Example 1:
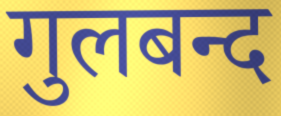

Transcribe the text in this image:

गुलबन्द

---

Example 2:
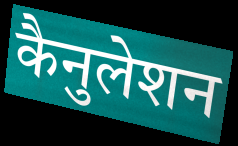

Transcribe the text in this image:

कैनुलेशन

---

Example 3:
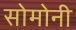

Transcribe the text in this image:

सोमोनी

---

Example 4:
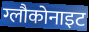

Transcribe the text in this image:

ग्लौकोनाइट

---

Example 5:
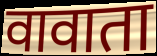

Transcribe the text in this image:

वावाता